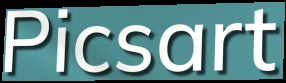
Picsart